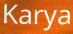
Karya